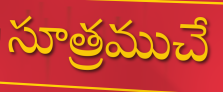
సూత్రముచే